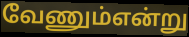
வேணும்என்று